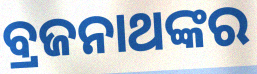
ବ୍ରଜନାଥଙ୍କର